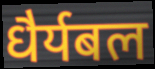
धैर्यबल